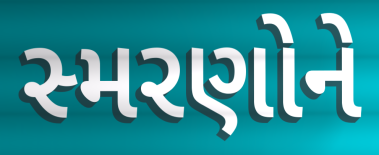
સ્મરણોને